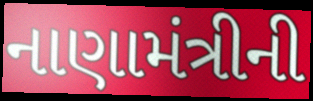
નાણામંત્રીની